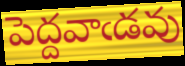
పెద్దవాఁడవు